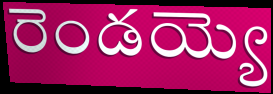
రెండయ్యె